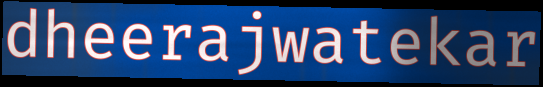
dheerajwatekar